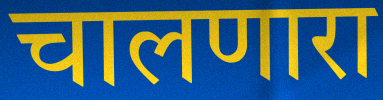
चालणारा